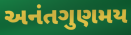
અનંતગુણમય